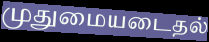
முதுமையடைதல்